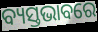
ବ୍ୟସ୍ତଭାବରେ